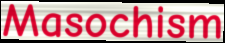
Masochism